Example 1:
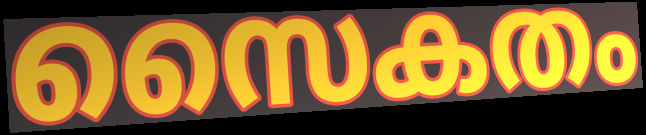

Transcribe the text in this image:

സൈകതം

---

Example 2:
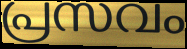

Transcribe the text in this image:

പ്രസവം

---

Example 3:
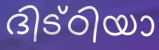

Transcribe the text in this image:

ദിട്ഠിയാ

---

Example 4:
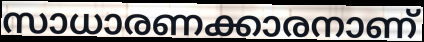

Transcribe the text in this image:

സാധാരണക്കാരനാണ്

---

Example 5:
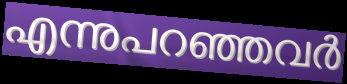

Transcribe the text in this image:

എന്നുപറഞ്ഞവർ